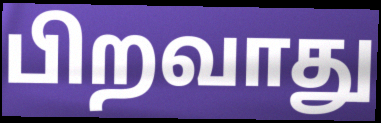
பிறவாது